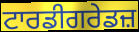
ਟਾਰਡੀਗਰੇਡਜ਼